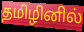
தமிழினில்